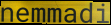
nemmadi